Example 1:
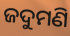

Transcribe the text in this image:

ଜଦୁମଣି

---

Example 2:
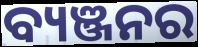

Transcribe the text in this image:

ବ୍ୟଞ୍ଜନର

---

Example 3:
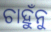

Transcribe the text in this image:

ଚାହୁଁନୁ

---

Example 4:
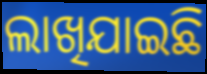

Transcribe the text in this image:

ଲାଖିଯାଇଛି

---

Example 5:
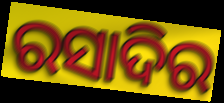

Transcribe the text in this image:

ରସାଦିର